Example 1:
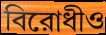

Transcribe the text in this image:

বিরোধীও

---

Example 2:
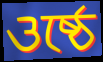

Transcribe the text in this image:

ওষ্ঠে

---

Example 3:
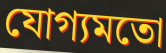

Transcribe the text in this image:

যোগ্যমতো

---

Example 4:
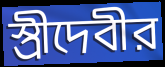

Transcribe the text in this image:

স্ত্রীদেবীর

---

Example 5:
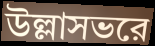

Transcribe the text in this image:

উল্লাসভরে